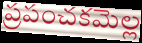
ప్రపంచకమెల్ల